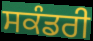
ਸਕੰਡਰੀ